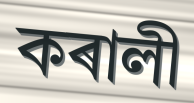
কৰালী